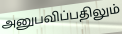
அனுபவிப்பதிலும்